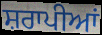
ਸ਼ਰਾਪੀਆਂ